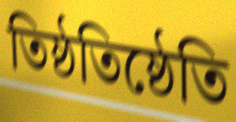
তিষ্ঠতিষ্ঠেতি